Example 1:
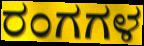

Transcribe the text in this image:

ರಂಗಗಳ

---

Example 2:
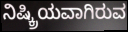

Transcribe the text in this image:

ನಿಷ್ಕ್ರಿಯವಾಗಿರುವ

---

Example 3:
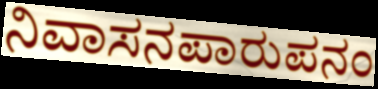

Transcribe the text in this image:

ನಿವಾಸನಪಾರುಪನಂ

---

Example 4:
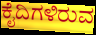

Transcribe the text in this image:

ಕೈದಿಗಳಿರುವ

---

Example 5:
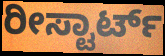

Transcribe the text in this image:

ರೀಸ್ಟಾರ್ಟ್